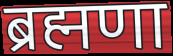
ब्रह्मणा